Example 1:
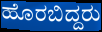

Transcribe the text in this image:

ಹೊರಬಿದ್ದರು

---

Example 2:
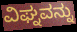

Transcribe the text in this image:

ವಿಘ್ನವನ್ನು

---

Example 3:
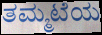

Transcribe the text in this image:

ತಮ್ಮಟೆಯ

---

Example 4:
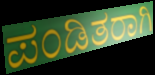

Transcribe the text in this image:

ಪಂಡಿತರಾಗಿ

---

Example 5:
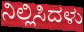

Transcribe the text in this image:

ನಿಲ್ಲಿಸಿದಳು